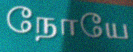
நோயே